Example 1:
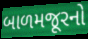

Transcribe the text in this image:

બાળમજૂરનો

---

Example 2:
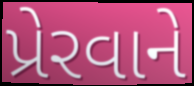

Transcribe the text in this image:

પ્રેરવાને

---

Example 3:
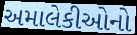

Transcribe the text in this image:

અમાલેકીઓનો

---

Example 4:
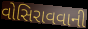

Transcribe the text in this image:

વોસિરાવવાની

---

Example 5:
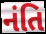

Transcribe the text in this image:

નંતિ